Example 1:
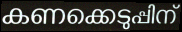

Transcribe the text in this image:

കണക്കെടുപ്പിന്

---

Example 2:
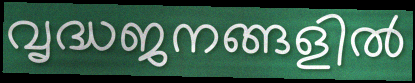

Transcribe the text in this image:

വൃദ്ധജനങ്ങളിൽ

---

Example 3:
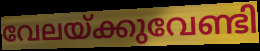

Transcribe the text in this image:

വേലയ്ക്കുവേണ്ടി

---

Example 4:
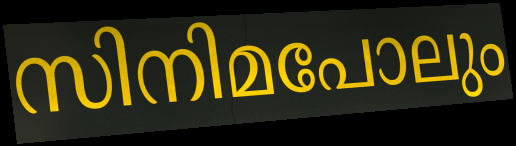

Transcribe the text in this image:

സിനിമപോലും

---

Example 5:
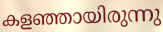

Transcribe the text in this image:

കളഞ്ഞായിരുന്നു